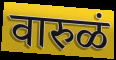
वारुळं